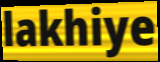
lakhiye